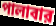
পালাবার